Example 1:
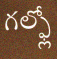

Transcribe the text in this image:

గల్ఫ్లో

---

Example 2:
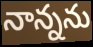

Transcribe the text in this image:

నాన్నను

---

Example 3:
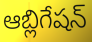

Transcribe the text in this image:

ఆబ్లిగేషన్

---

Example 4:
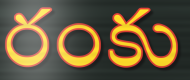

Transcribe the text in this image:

రంకు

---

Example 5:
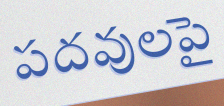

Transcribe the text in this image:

పదవులపై